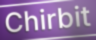
Chirbit